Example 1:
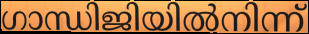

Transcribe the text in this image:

ഗാന്ധിജിയിൽനിന്ന്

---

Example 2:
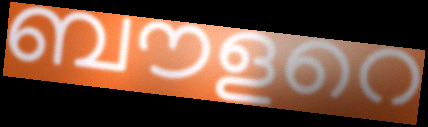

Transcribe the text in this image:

ബൗളറെ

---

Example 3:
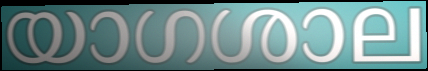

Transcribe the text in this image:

യാഗശാല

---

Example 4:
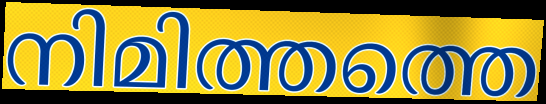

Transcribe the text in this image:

നിമിത്തത്തെ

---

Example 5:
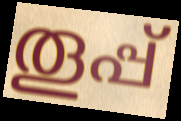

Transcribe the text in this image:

തൂപ്പ്